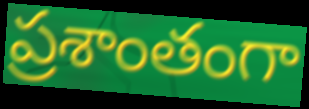
ప్రశాంతంగా